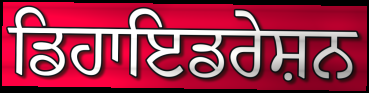
ਡਿਹਾਇਡਰੇਸ਼ਨ